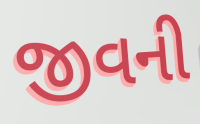
જીવની